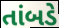
તાંબડે